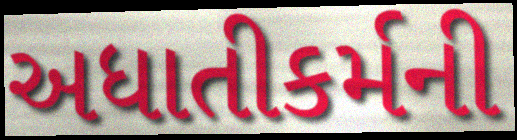
અધાતીકર્મની